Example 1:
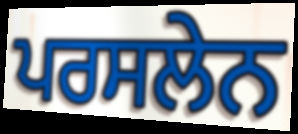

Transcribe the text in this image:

ਪਰਸਲੇਨ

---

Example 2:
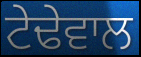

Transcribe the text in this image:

ਟੇਢੇਵਾਲ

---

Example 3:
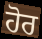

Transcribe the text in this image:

ਹੋਰ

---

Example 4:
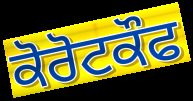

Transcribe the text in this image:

ਕੋਰੋਟਕੌਫ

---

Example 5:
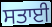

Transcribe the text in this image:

ਸਤਾਈ